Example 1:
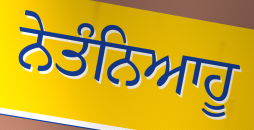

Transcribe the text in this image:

ਨੇਤੰਨਿਆਹੂ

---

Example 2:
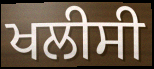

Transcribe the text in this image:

ਖਲੀਸੀ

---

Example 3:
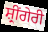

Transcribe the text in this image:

ਸ਼੍ਰੀਂਗੇਰੀ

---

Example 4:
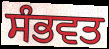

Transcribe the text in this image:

ਸੰਭਵਤ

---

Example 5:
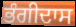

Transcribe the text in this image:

ਭੰਗੀਦਾਸ